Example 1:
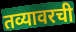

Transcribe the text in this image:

तव्यावरची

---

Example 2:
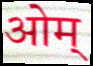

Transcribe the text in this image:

ओम्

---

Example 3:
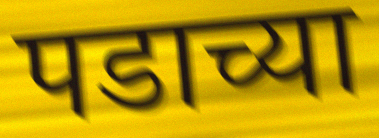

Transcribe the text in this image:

पडाच्या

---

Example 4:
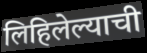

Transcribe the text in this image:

लिहिलेल्याची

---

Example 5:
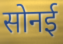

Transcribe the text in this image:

सोनई